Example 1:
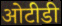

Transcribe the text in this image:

ओटीडी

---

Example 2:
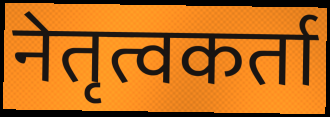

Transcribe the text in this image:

नेतृत्‍वकर्ता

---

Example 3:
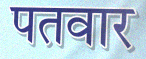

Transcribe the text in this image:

पतवार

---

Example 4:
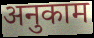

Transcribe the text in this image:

अनुकाम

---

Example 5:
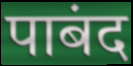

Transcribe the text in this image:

पाबंद